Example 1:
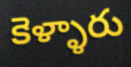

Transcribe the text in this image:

కెళ్ళారు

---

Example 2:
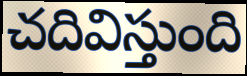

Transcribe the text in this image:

చదివిస్తుంది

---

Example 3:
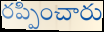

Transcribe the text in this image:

రప్పించారు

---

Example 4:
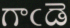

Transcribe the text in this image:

గాఁడె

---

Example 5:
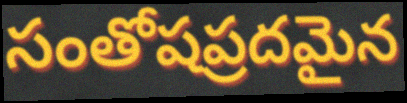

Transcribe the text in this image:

సంతోషప్రదమైన